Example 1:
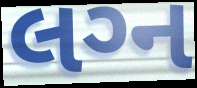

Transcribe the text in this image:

લગ્‍ન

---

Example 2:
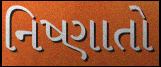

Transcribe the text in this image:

નિષ્ણાતો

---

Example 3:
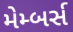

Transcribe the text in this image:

મેમ્બર્સ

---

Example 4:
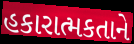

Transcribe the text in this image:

હકારાત્મકતાને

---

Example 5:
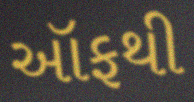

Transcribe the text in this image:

ઑફથી